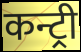
कन्ट्री